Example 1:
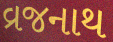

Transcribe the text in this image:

વ્રજનાથ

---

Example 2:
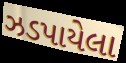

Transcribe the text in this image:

ઝડપાયેલા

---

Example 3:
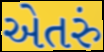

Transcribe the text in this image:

એતરું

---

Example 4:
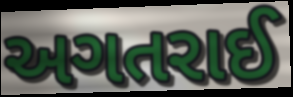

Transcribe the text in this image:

અગતરાઈ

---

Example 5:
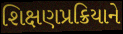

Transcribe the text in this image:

શિક્ષણપ્રક્રિયાને